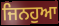
ਜਿਨਹੁਆ